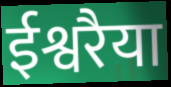
ईश्वरैया